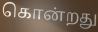
கொன்றது